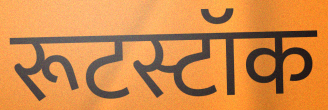
रूटस्टॉक